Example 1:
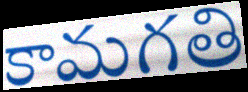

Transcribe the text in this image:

కామగతి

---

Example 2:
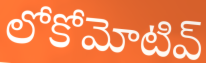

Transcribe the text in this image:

లోకోమోటివ్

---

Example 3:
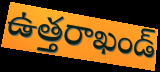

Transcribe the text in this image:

ఉత్తరాఖండ్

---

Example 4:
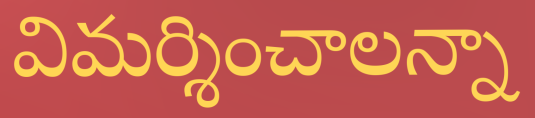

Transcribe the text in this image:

విమర్శించాలన్నా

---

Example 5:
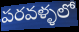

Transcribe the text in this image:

పరవళ్ళలో